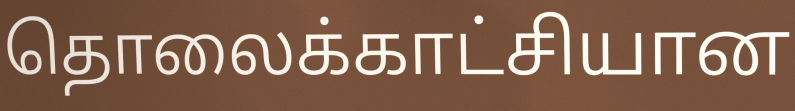
தொலைக்காட்சியான